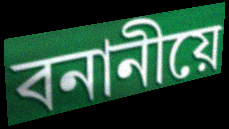
বনানীয়ে